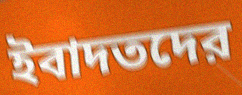
ইবাদতদের